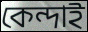
কেন্দাই